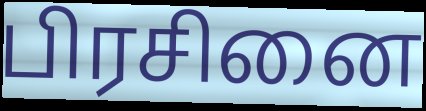
பிரசினை